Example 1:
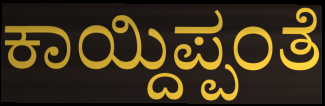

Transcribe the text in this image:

ಕಾಯ್ದಿಪ್ಪಂತೆ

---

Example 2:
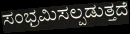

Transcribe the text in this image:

ಸಂಭ್ರಮಿಸಲ್ಪಡುತ್ತದೆ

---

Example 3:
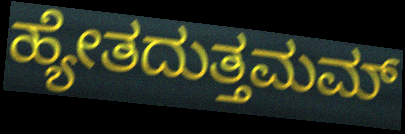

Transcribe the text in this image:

ಹ್ಯೇತದುತ್ತಮಮ್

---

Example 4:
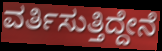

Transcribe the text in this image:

ವರ್ತಿಸುತ್ತಿದ್ದೇನೆ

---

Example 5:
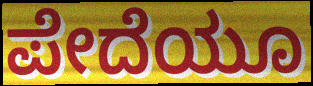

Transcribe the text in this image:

ಪೇದೆಯೂ